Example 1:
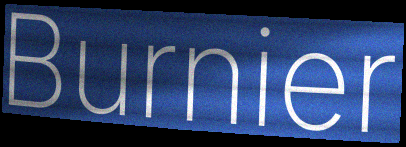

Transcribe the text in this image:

Burnier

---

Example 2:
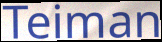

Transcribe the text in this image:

Teiman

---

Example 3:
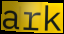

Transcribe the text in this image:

ark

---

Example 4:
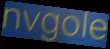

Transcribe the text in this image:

nvgole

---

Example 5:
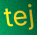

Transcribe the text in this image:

tej